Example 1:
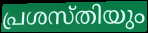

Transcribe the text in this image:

പ്രശസ്തിയും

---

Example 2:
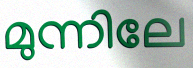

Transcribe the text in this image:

മുന്നിലേ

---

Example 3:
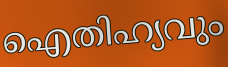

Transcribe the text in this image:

ഐതിഹ്യവും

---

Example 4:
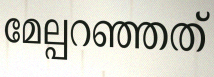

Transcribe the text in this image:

മേല്പറഞ്ഞത്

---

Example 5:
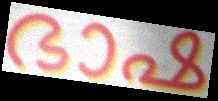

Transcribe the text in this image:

ഭാഷ